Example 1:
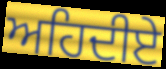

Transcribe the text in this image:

ਅਹਿਦੀਏ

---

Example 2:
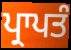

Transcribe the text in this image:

ਪ੍ਰਾਪਤੰ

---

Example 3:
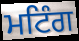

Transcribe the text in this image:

ਮਟਿੰਗ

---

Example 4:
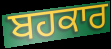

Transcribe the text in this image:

ਬਹਕਾਰ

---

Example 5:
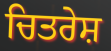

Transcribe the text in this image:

ਚਿਤਰੇਸ਼